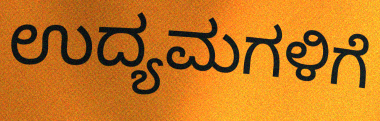
ಉದ್ಯಮಗಳಿಗೆ